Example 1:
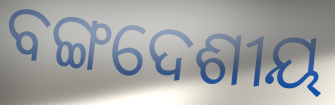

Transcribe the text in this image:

ବଙ୍ଗଦେଶୀୟ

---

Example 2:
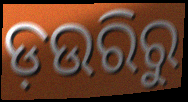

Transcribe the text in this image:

ଡ଼ଉରିରୁ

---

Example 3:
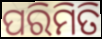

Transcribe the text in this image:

ପରିମିତି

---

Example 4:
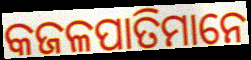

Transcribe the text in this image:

କଜଳପାତିମାନେ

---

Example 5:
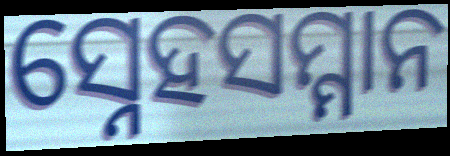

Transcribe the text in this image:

ସ୍ନେହସମ୍ମାନ